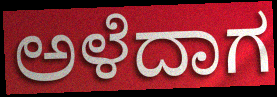
ಅಳೆದಾಗ